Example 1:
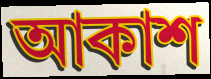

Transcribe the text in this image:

আকাশ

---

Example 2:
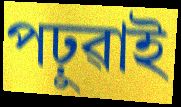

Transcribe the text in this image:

পঢ়ুৱাই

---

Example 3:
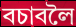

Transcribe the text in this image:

বচাবলৈ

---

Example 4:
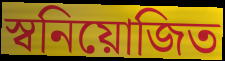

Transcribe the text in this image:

স্বনিয়োজিত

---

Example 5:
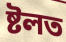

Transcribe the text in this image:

ষ্টলত